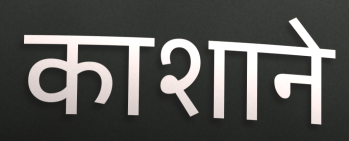
काशाने